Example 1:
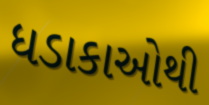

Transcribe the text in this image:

ધડાકાઓથી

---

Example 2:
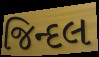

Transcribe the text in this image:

જિન્દલ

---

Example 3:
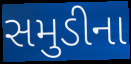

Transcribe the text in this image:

સમુડીના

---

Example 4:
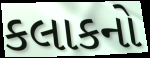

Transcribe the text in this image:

કલાકનો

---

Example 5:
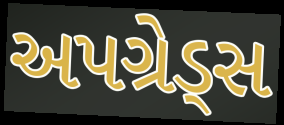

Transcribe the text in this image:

અપગ્રેડ્સ